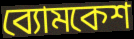
ব্যোমকেশ